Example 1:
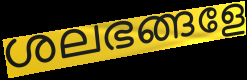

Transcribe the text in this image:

ശലഭങ്ങളേ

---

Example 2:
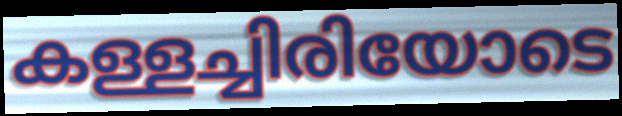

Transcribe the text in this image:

കള്ളച്ചിരിയോടെ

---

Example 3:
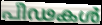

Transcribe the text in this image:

പീഢകൾ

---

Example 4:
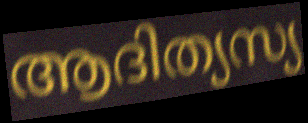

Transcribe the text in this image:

ആദിത്യസ്യ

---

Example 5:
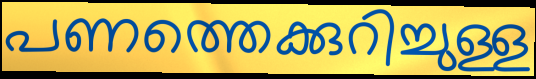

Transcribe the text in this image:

പണത്തെക്കുറിച്ചുള്ള